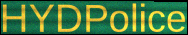
HYDPolice